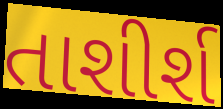
તાશીર્શ